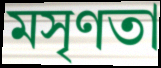
মসৃণতা